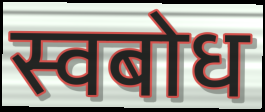
स्वबोध